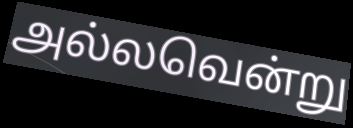
அல்லவென்று